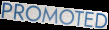
PROMOTED